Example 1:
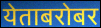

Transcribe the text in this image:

येताबरोबर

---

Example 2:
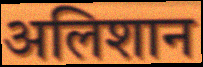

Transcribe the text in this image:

अलिशान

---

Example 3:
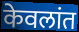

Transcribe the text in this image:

केवलांत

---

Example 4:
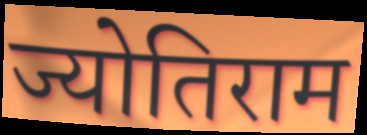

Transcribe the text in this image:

ज्योतिराम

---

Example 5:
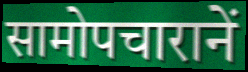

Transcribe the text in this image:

सामोपचारानें